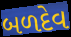
બળદેવ